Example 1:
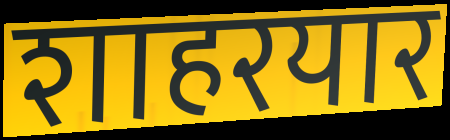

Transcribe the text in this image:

शाहरयार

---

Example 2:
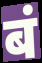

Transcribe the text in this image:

बं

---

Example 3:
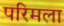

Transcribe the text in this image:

परिमला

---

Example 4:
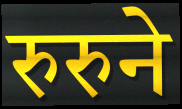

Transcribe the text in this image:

रुरुने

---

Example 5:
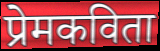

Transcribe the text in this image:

प्रेमकविता